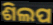
ଶିଲପ